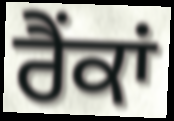
ਰੈਂਕਾਂ